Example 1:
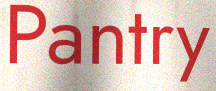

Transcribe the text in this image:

Pantry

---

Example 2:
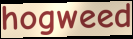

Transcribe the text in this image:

hogweed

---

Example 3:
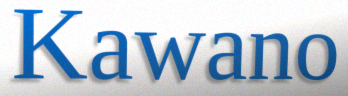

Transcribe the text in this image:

Kawano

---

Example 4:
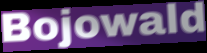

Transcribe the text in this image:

Bojowald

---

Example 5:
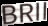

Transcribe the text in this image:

BRII